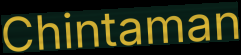
Chintaman